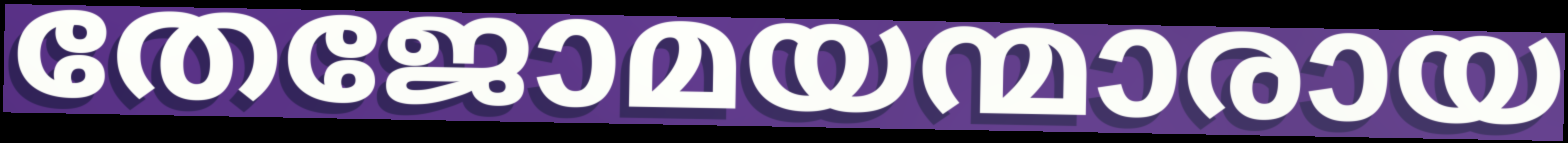
തേജോമയന്മാരായ